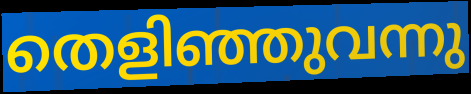
തെളിഞ്ഞുവന്നു